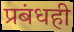
प्रबंधही